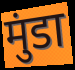
मुंडा